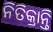
ନିତିକ୍ରାନ୍ତି